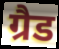
ग्रैड